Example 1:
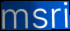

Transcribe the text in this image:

msri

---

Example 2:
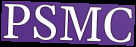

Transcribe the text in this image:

PSMC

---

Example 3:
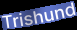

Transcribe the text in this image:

Trishund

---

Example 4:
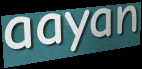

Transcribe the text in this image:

aayan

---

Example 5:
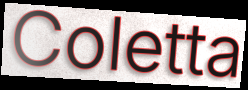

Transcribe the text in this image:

Coletta